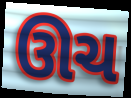
ઊચ